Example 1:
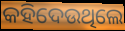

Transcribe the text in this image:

କହିଦେଉଥିଲେ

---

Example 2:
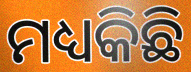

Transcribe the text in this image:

ମଧ୍ୟକିଛି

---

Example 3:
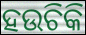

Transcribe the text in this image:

ହଉଚିକି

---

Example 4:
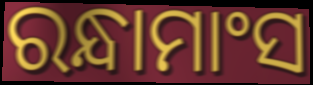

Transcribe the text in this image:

ରନ୍ଧାମାଂସ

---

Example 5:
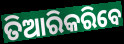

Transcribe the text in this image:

ତିଆରିକରିବେ